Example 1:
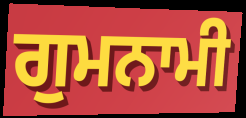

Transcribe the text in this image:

ਗੁਮਨਾਮੀ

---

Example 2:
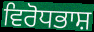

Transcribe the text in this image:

ਵਿਰੋਧਭਾਸ਼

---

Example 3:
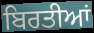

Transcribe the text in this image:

ਬਿਰਤੀਆਂ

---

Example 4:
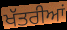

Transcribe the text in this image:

ਖੱਤਰੀਆਂ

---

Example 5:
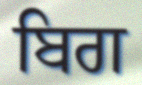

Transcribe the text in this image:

ਬਿਗ